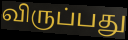
விருப்பது